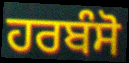
ਹਰਬੰਸੋ